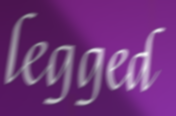
legged